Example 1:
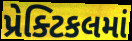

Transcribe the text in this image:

પ્રેક્ટિકલમાં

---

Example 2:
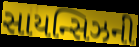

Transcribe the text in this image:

સાયન્સિઝની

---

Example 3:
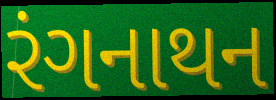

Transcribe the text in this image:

રંગનાથન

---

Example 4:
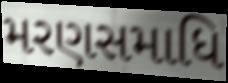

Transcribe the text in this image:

મરણસમાધિ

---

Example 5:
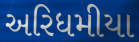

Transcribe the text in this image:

અરિધમીયા